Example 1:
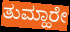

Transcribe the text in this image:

ತುಮ್ಹಾರೇ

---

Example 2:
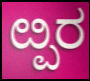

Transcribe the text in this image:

ೞ್ಪರ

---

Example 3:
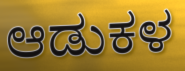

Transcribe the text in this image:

ಆಡುಕಳ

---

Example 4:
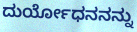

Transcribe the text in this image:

ದುರ್ಯೋಧನನನ್ನು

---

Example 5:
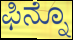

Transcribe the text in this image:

ಫಿನ್ನೊ